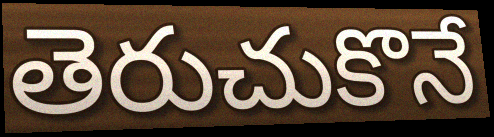
తెరుచుకొనే